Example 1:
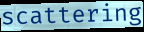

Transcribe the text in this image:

scattering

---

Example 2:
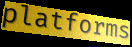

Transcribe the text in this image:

platforms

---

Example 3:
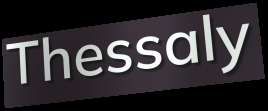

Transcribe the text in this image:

Thessaly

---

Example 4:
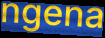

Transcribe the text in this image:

ngena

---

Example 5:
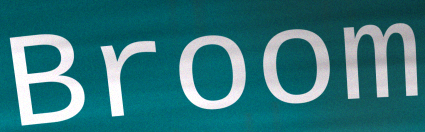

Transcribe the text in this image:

Broom